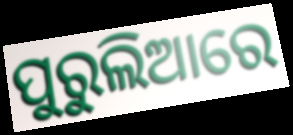
ପୁରୁଲିଆରେ